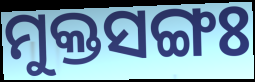
ମୁକ୍ତସଙ୍ଗଃ